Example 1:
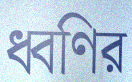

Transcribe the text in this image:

ধ্বণির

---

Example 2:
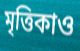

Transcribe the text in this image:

মৃত্তিকাও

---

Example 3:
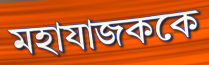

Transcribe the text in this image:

মহাযাজককে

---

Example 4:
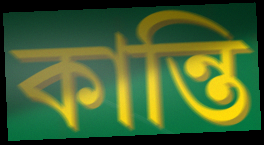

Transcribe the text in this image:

কান্তি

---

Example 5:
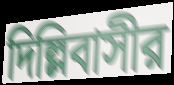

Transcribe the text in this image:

দিল্লিবাসীর